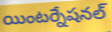
యింటర్నేషనల్